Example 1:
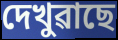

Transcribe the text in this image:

দেখুৱাছে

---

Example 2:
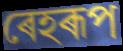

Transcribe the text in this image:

ৰেহৰূপ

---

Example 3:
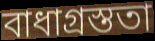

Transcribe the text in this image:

বাধাগ্ৰস্ততা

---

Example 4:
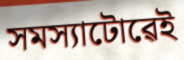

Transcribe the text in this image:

সমস্যাটোৱেই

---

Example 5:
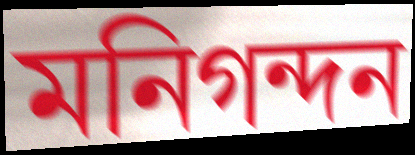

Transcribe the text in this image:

মনিগন্দন